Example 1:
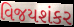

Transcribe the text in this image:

વિજયશંકર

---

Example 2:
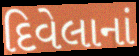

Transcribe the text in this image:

દિવેલાનાં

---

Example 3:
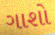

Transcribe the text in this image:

ગાશો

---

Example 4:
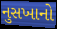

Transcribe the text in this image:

નુસખાનો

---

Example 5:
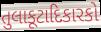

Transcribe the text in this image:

તુલાકૂટાદિકારકો